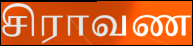
சிராவண